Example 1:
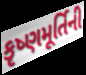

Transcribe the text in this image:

કૃષ્ણમૂર્તિની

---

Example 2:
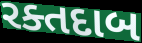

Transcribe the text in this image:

રક્તદાબ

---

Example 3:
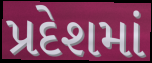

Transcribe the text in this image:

પ્રદેશમાં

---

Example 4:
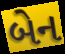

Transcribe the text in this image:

બેન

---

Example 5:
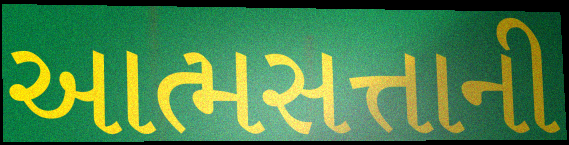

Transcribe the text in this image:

આત્મસત્તાની